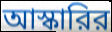
আস্কারির